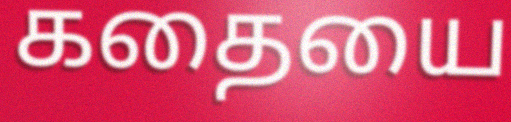
கதையை